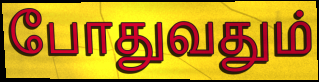
போதுவதும்